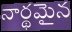
నార్థమైన